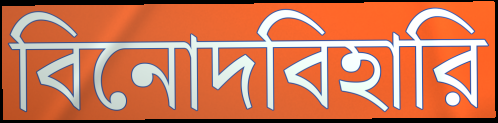
বিনোদবিহারি